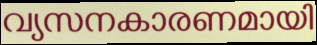
വ്യസനകാരണമായി